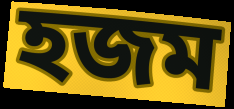
হজম